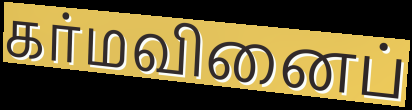
கர்மவினைப்